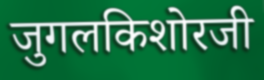
जुगलकिशोरजी